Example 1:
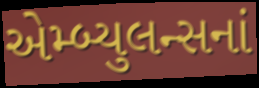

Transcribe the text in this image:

એમ્બ્યુલન્સનાં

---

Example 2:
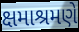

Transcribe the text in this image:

ક્ષમાશ્રમણે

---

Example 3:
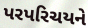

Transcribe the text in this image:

પરપરિચયને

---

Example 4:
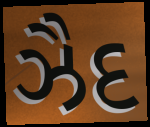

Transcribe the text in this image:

ઝૈદ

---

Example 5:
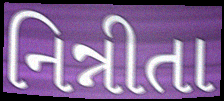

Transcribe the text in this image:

નિન્નીતા